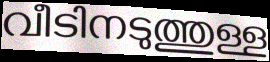
വീടിനടുത്തുള്ള